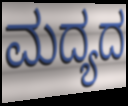
ಮದ್ಯದ